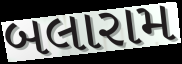
બલારામ